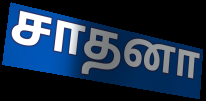
சாதனா